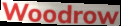
Woodrow